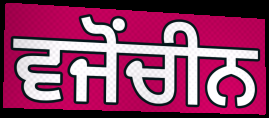
ਵਜੋਂਚੀਨ